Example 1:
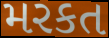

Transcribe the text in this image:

મરકત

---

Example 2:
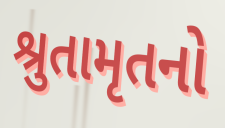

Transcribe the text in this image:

શ્રુતામૃતનો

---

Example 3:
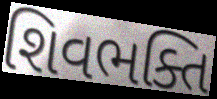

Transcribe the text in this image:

શિવભક્તિ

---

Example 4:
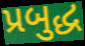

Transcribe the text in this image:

પ્રબુદ્ધ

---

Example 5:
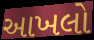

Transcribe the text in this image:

આખલો